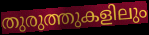
തുരുത്തുകളിലും